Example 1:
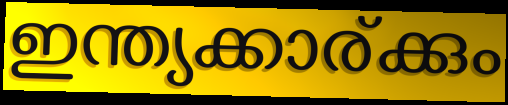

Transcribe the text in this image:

ഇന്ത്യക്കാര്ക്കും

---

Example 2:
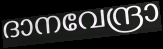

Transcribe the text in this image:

ദാനവേന്ദ്രാ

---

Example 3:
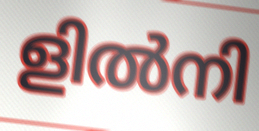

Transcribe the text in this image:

ളിൽനി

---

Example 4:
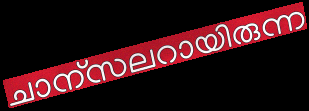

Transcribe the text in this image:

ചാന്സലറായിരുന്ന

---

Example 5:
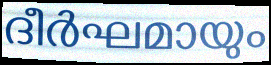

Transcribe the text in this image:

ദീർഘമായും